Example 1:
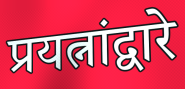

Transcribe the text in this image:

प्रयत्नांद्वारे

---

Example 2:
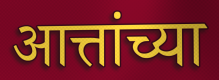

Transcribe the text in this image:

आत्तांच्या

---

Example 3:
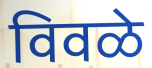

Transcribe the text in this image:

विवळे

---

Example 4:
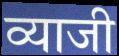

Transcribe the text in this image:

व्याजी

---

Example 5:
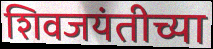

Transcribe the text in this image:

शिवजयंतीच्या